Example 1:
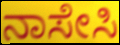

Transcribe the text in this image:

ನಾಸೇಸಿ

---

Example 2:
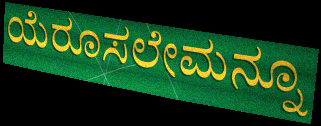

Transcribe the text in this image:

ಯೆರೂಸಲೇಮನ್ನೂ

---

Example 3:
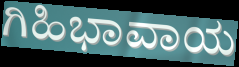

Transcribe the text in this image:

ಗಿಹಿಭಾವಾಯ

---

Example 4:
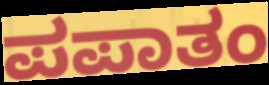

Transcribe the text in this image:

ಪಪಾತಂ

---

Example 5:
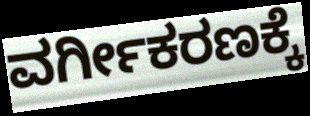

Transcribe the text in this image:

ವರ್ಗೀಕರಣಕ್ಕೆ